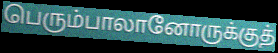
பெரும்பாலானோருக்குத்